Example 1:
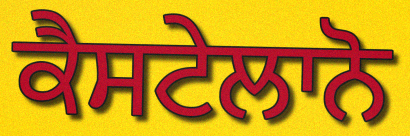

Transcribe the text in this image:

ਕੈਸਟੇਲਾਨੋ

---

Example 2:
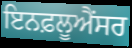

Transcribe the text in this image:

ਇਨਫ਼ਲੂਐਂਸਰ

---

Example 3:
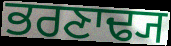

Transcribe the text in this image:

ਭਰਣਾਢ੍ਯ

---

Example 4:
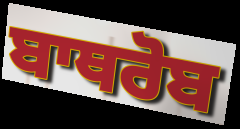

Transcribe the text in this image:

ਬਾਥਰੋਬ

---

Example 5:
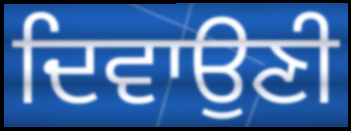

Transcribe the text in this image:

ਦਿਵਾਉਣੀ